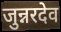
जुन्नरदेव